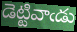
డెట్టివాఁడు